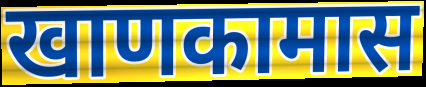
खाणकामास